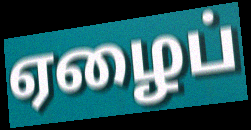
ஏழைப்